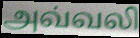
அவ்வலி